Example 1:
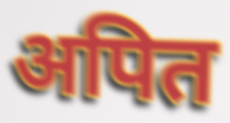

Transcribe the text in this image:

अपित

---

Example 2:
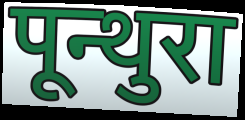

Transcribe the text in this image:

पून्थुरा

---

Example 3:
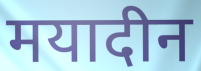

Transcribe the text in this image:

मयादीन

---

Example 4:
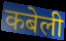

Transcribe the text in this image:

कबेली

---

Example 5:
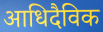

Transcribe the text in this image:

आधिदैविक